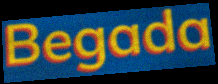
Begada